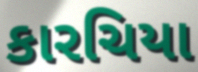
કારચિયા